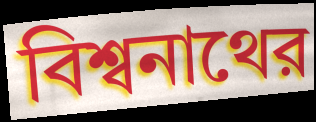
বিশ্বনাথের